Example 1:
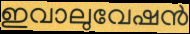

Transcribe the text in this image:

ഇവാലുവേഷൻ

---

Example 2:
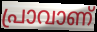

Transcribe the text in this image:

പ്രാവാണ്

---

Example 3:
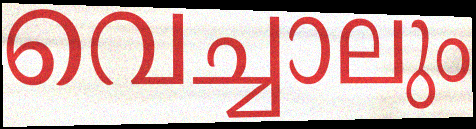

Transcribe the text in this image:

വെച്ചാലും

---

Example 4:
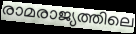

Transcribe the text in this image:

രാമരാജ്യത്തിലെ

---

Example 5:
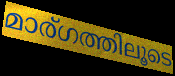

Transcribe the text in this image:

മാര്ഗത്തിലൂടെ